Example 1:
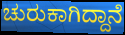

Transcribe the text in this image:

ಚುರುಕಾಗಿದ್ದಾನೆ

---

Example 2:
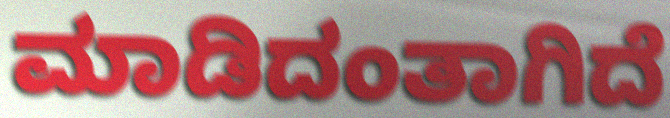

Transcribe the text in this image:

ಮಾಡಿದಂತಾಗಿದೆ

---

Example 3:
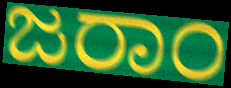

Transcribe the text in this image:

ಜರಾಂ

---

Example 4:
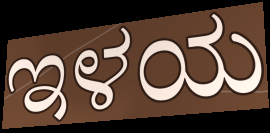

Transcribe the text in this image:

ಇಳಯ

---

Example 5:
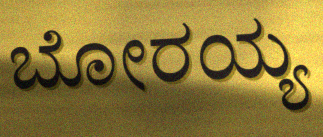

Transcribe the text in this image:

ಬೋರಯ್ಯ